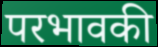
परभावकी